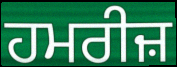
ਹਮਰੀਜ਼